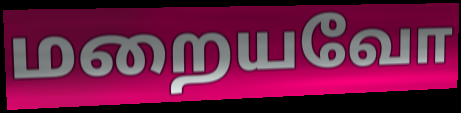
மறையவோ